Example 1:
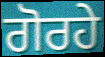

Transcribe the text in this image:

ਗੋਰਹੇ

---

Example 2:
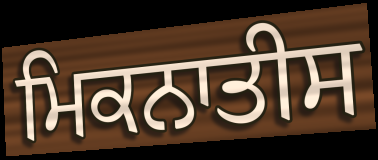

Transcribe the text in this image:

ਮਿਕਨਾਤੀਸ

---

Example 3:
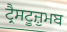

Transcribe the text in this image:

ਟ੍ਰੈਸਟੂਜ਼ੁਮਬ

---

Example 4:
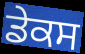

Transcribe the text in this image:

ਡੇਕਸ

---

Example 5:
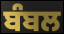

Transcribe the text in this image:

ਬੰਬਲ